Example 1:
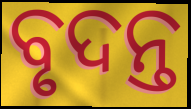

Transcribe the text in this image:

ବୃଦନ୍ତ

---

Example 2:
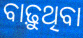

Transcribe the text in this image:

ବାଢ଼ୁଥିବା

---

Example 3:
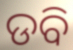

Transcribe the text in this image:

ଡବି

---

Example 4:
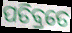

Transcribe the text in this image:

ପତିବ୍ରତେ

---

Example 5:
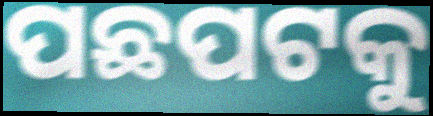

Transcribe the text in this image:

ପଛପଟକୁ